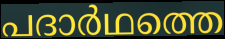
പദാർഥത്തെ